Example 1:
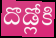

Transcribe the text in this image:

దొడ్లోకి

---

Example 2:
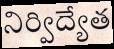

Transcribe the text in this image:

నిర్విద్యేత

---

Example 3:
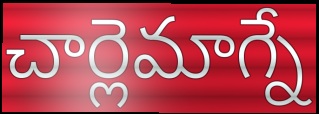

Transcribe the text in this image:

చార్లెమాగ్నే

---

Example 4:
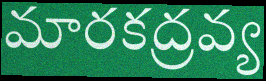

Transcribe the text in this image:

మారకద్రవ్య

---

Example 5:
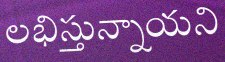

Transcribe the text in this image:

లభిస్తున్నాయని